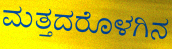
ಮತ್ತದರೊಳಗಿನ